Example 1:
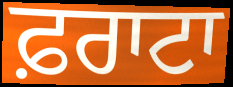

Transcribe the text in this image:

ਫ਼ਰਾਟਾ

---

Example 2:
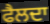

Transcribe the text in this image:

ਫੈਲਦਾ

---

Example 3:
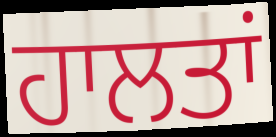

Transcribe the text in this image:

ਹਾਲਤਾਂ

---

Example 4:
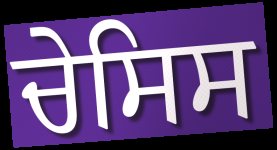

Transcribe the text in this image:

ਚੇਸਿਸ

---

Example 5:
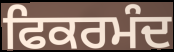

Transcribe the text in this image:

ਫਿਕਰਮੰਦ